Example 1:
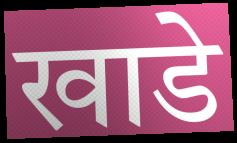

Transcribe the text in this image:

खाडे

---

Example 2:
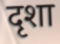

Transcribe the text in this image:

दृशा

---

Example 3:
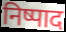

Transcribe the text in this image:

निष्पाद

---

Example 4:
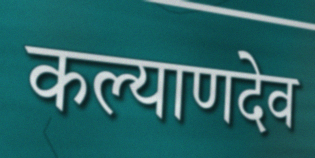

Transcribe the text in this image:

कल्याणदेव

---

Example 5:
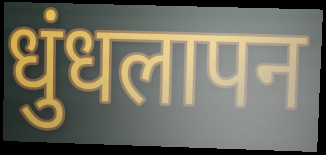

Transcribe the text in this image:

धुंधलापन